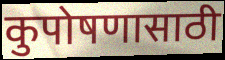
कुपोषणासाठी